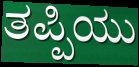
ತಪ್ಪಿಯು